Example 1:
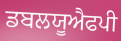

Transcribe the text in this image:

ਡਬਲਯੂਐਫਪੀ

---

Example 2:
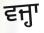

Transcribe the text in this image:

ਵਜ੍ਹਾ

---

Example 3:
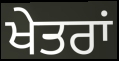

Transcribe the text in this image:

ਖੇਤਰਾਂ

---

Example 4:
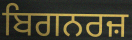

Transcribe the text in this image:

ਬਿਗਨਰਜ਼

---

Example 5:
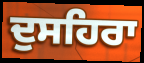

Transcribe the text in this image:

ਦੁਸਹਿਰਾ